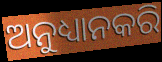
ଅନୁଧ୍ୟାନକରି